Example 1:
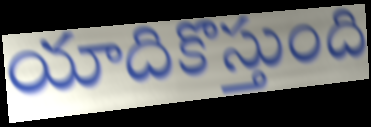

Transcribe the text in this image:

యాదికొస్తుంది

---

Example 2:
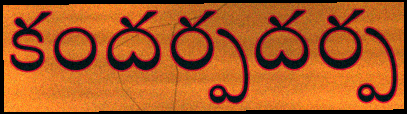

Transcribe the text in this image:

కందర్పదర్ప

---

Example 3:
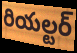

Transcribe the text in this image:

రియల్టర్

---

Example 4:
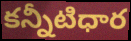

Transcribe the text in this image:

కన్నీటిధార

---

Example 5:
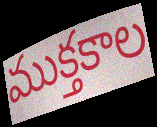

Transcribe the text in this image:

ముక్తకాల